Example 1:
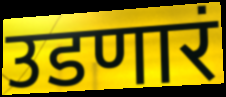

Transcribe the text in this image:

उडणारं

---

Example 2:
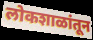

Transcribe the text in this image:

लोकशाळांतून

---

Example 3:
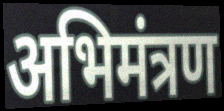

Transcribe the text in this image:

अभिमंत्रण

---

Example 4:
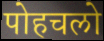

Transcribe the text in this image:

पोहचलो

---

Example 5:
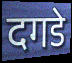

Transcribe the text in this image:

दगडे